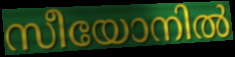
സീയോനിൽ